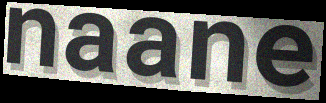
naane